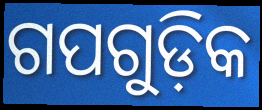
ଗପଗୁଡ଼ିକ